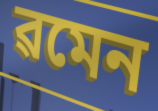
ৱমেন